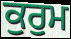
ਕੁਰੁਮ